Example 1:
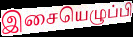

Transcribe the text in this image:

இசையெழுப்பி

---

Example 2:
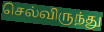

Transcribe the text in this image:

செல்விருந்து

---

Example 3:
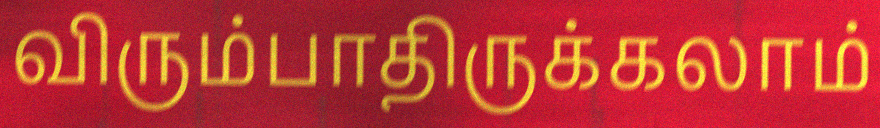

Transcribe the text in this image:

விரும்பாதிருக்கலாம்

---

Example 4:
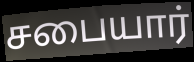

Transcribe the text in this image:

சபையார்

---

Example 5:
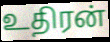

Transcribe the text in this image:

உதிரன்